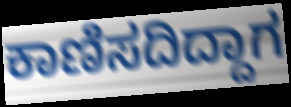
ಕಾಣಿಸದಿದ್ದಾಗ